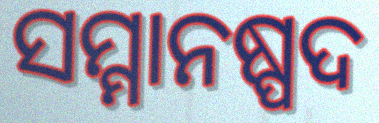
ସମ୍ମାନଷ୍ପଦ